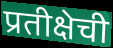
प्रतीक्षेची